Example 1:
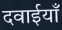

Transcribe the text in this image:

दवाईयाँ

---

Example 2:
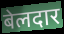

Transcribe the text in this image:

बेलदार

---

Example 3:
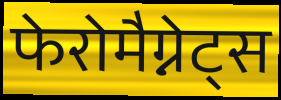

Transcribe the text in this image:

फेरोमैग्नेट्स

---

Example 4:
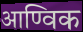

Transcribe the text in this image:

आण्विक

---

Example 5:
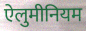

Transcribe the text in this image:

ऐलुमीनियम